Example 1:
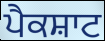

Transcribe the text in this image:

ਪੈਕਸ਼ਾਟ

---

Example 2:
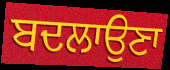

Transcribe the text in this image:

ਬਦਲਾਉਣਾ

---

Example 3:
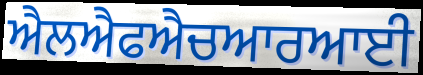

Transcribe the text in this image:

ਐਲਐਫਐਚਆਰਆਈ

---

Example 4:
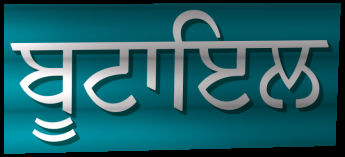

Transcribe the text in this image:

ਬੂਟਾਇਲ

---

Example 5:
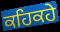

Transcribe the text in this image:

ਕਹਿਕਹੇ